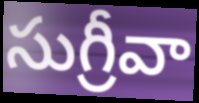
సుగ్రీవా